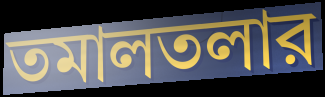
তমালতলার